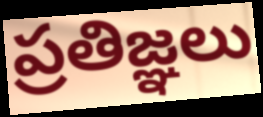
ప్రతిజ్ఞలు